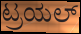
ಟ್ರಯಲ್